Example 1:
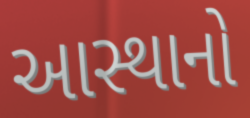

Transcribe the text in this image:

આસ્થાનો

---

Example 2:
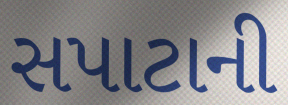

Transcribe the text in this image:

સપાટાની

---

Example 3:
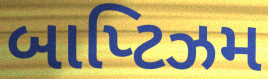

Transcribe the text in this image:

બાપ્ટિઝમ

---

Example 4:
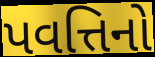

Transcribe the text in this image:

પવત્તિનો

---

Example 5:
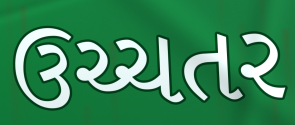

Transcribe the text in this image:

ઉચ્ચતર